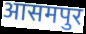
आसमपुर